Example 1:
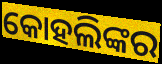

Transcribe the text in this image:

କୋହଲିଙ୍କର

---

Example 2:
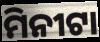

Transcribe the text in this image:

ମିନୀଟା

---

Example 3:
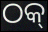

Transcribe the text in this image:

ଠକ୍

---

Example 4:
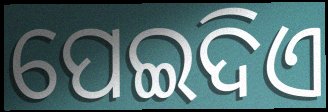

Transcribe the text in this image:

ପେଇଦିଏ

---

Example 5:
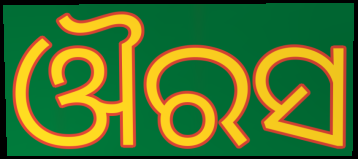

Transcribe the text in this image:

ଔରସ